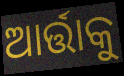
ଆର୍ତ୍ତାକୁ